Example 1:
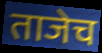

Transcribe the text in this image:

ताजेच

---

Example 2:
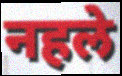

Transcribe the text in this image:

नहले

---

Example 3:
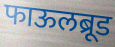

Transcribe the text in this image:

फाऊलब्रूड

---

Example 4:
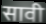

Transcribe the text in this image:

सावी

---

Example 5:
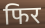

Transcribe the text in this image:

फिर